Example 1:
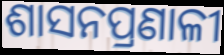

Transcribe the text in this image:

ଶାସନପ୍ରଣାଳୀ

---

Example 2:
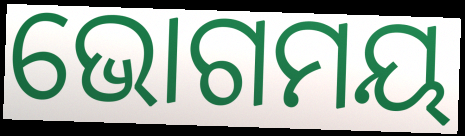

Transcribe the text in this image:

ଭୋଗମୟ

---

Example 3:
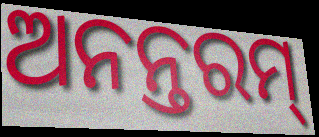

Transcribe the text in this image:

ଅନନ୍ତରମ୍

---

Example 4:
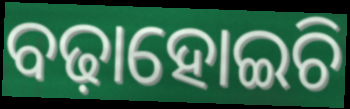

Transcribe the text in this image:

ବଢ଼ାହୋଇଚି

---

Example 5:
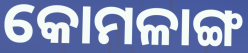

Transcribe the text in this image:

କୋମଳାଙ୍ଗ